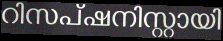
റിസപ്ഷനിസ്റ്റായി